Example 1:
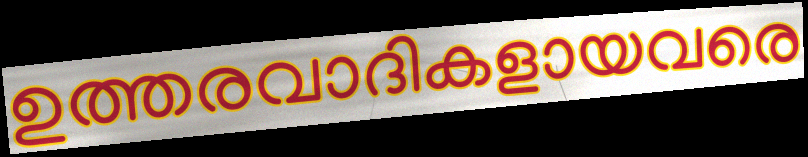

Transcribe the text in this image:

ഉത്തരവാദികളായവരെ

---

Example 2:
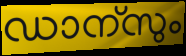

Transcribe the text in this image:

ഡാന്സും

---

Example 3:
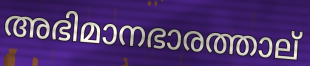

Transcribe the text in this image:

അഭിമാനഭാരത്താല്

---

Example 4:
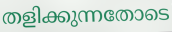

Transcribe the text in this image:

തളിക്കുന്നതോടെ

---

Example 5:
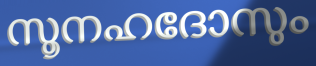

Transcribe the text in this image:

സൂനഹദോസും